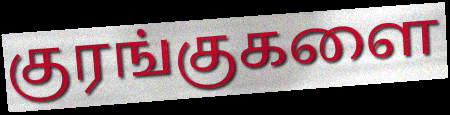
குரங்குகளை